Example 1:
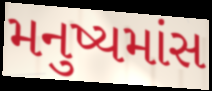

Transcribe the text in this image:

મનુષ્યમાંસ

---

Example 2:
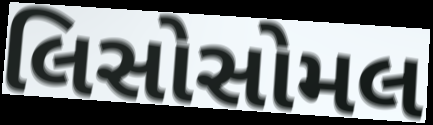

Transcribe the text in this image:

લિસોસોમલ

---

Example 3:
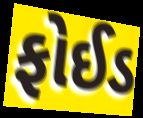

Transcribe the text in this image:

ફોઈડ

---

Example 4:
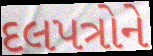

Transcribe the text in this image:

દલપત્રોને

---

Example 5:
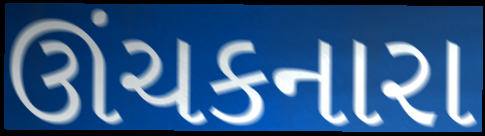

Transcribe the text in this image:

ઊંચકનારા